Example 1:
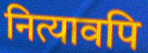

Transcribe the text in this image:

नित्यावपि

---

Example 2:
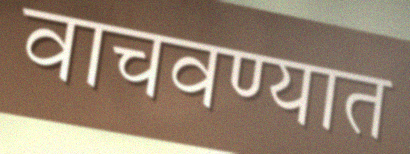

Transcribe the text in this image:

वाचवण्यात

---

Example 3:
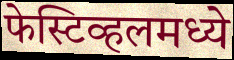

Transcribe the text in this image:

फेस्टिव्हलमध्ये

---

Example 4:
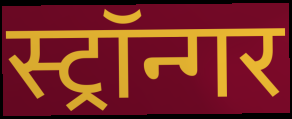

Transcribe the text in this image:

स्ट्रॉन्गर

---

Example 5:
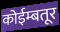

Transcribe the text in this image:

कोईम्बतूर